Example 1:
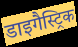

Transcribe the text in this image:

डाइगैस्ट्रिक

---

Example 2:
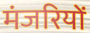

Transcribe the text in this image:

मंजरियों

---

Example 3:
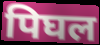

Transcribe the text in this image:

पिघल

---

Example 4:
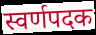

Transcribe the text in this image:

स्वर्णपदक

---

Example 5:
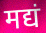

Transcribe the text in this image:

मद्यं